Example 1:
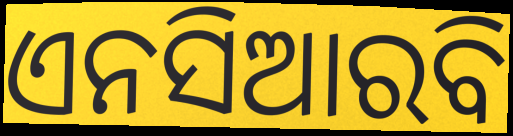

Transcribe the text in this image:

ଏନସିଆରବି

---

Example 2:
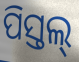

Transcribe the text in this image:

ପିସ୍ତଲ୍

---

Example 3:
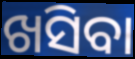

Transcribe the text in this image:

ଖସିବା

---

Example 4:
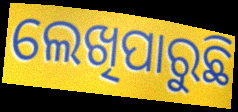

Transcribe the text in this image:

ଲେଖିପାରୁଛି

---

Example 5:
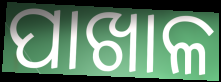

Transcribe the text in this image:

ପାଖାଳ